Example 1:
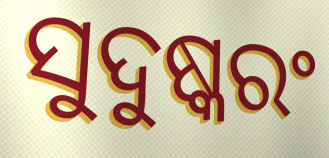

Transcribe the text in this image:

ସୁଦୁଷ୍କରଂ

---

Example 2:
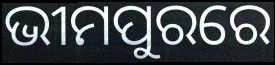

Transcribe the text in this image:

ଭୀମପୁରରେ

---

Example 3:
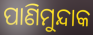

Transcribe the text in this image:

ପାଣିମୁନ୍ଦାକ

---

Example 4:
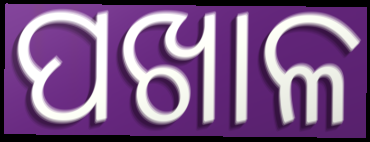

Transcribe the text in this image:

ପଖାଳ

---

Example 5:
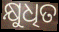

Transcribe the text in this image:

କ୍ଷୁଧିତ